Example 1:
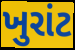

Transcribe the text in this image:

ખુરાંટ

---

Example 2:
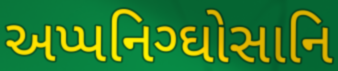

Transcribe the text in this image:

અપ્પનિગ્ઘોસાનિ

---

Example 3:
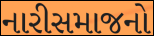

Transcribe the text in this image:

નારીસમાજનો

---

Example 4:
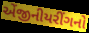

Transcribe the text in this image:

એંજીનીયરીંગનો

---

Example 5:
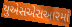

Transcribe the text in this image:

યુએસએસઆરમાં